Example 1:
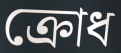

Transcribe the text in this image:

ক্ৰোধ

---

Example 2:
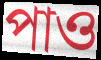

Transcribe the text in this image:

পাও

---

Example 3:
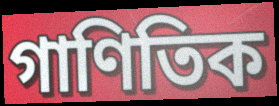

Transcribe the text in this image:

গাণিতিক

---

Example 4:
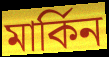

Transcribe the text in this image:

মাৰ্কিন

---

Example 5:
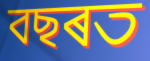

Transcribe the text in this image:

বছৰত